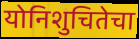
योनिशुचितेचा